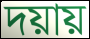
দয়ায়